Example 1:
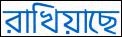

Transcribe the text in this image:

রাখিয়াছে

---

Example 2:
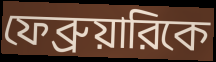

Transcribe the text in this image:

ফেব্রুয়ারিকে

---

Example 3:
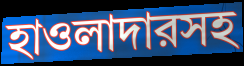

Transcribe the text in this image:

হাওলাদারসহ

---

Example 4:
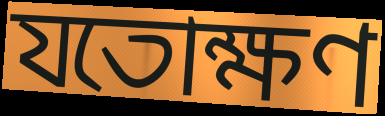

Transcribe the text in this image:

যতোক্ষণ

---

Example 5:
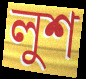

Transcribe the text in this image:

লুশ